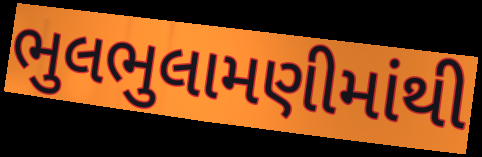
ભુલભુલામણીમાંથી